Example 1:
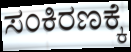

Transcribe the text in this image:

ಸಂಕಿರಣಕ್ಕೆ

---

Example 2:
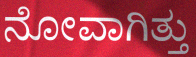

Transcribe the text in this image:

ನೋವಾಗಿತ್ತು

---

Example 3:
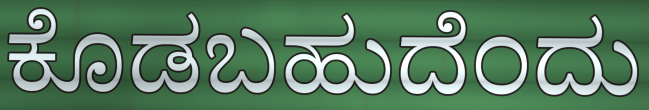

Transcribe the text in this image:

ಕೊಡಬಹುದೆಂದು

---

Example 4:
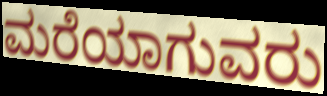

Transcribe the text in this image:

ಮರೆಯಾಗುವರು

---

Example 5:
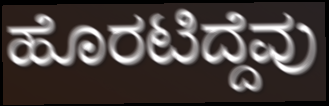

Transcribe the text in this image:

ಹೊರಟಿದ್ದೆವು